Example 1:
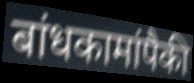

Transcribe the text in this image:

बांधकामांपैकी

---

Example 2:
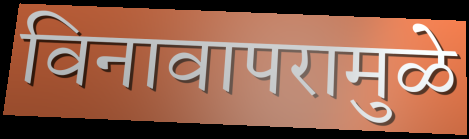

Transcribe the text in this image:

विनावापरामुळे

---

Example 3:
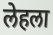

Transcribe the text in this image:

लेहला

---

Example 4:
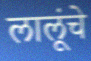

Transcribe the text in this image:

लालूंचे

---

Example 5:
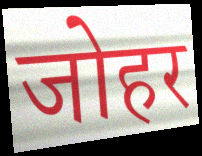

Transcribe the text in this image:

जोहर